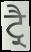
ਟ੍ਰੈ